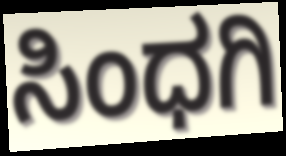
ಸಿಂಧಗಿ